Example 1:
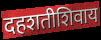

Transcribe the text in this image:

दहशतीशिवाय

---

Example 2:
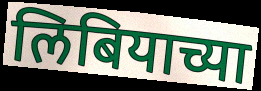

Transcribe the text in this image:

लिबियाच्या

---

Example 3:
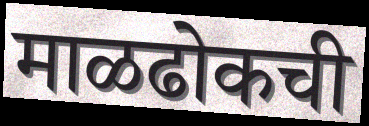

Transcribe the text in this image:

माळढोकची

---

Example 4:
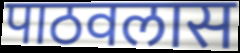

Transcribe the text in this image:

पाठवलास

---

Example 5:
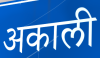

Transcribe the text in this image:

अकाली